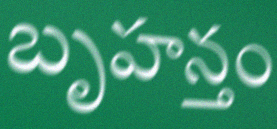
బృహన్తం